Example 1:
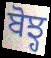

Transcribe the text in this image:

ਬੋਝ੍ਹ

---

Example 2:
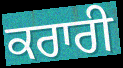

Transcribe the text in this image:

ਕਰਾਰੀ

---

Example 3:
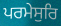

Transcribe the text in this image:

ਪਰਮੇਸੁਰਿ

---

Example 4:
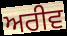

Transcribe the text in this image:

ਅਰੀਵ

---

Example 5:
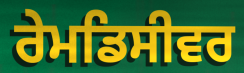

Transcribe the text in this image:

ਰੇਮਡਿਸੀਵਰ